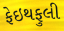
ફેઇથફુલી